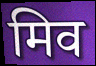
मिव